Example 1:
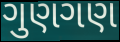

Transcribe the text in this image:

ગુણગણ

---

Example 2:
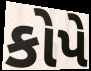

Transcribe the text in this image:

કોપે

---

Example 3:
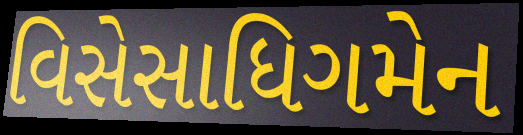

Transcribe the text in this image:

વિસેસાધિગમેન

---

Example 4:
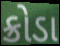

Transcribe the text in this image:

ક્રોડા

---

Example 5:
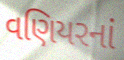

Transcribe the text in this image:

વણિયરનાં